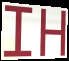
IH